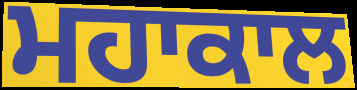
ਮਹਾਕਾਲ